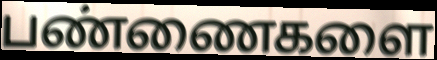
பண்ணைகளை